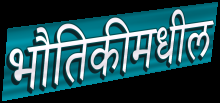
भौतिकीमधील